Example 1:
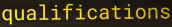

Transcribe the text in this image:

qualifications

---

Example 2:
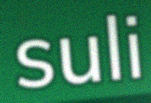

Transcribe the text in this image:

suli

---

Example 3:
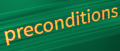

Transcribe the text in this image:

preconditions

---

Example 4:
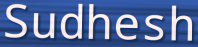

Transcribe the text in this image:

Sudhesh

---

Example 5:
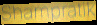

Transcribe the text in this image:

Shampratik